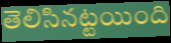
తెలిసినట్టయింది